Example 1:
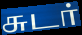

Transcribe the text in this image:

சுடர்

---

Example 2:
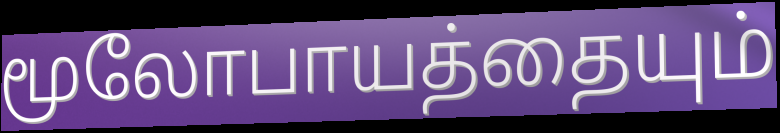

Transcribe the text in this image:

மூலோபாயத்தையும்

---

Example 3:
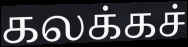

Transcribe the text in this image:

கலக்கச்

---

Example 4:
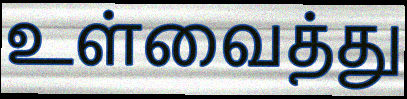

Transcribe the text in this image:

உள்வைத்து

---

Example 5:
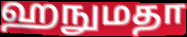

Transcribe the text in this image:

ஹநுமதா